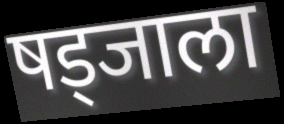
षड्जाला